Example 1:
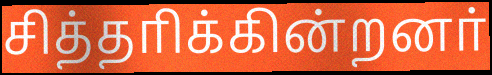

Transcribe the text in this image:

சித்தரிக்கின்றனர்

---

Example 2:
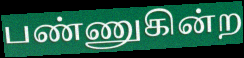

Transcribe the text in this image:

பண்ணுகின்ற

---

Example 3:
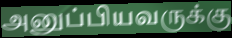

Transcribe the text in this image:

அனுப்பியவருக்கு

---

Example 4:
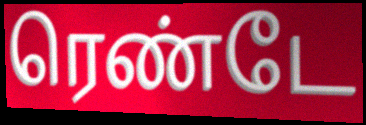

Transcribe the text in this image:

ரெண்டே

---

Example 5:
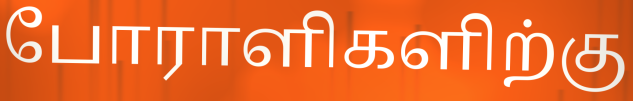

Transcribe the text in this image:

போராளிகளிற்கு